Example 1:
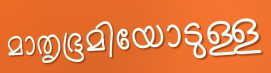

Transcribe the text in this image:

മാതൃഭൂമിയോടുള്ള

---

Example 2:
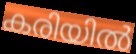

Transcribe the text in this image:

കരിയിൽ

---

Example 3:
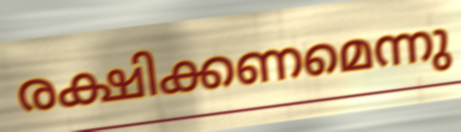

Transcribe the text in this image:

രക്ഷിക്കണമെന്നു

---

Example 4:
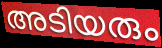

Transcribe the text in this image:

അടിയരും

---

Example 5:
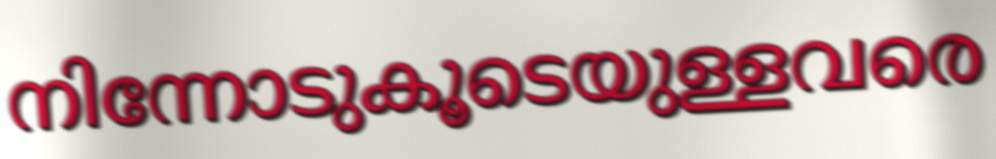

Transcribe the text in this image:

നിന്നോടുകൂടെയുള്ളവരെ